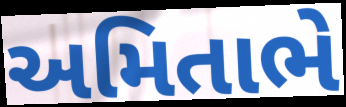
અમિતાભે